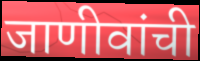
जाणीवांची